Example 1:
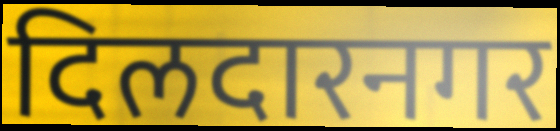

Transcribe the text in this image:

दिलदारनगर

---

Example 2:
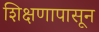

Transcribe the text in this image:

शिक्षणापासून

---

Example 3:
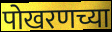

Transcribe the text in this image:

पोखरणच्या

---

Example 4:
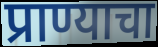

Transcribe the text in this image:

प्राण्याचा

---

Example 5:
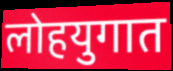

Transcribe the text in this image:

लोहयुगात